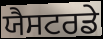
ਯੈਸਟਰਡੇ